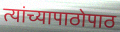
त्यांच्यापाठोपाठ